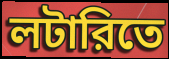
লটারিতে